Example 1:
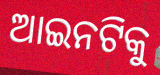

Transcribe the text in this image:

ଆଇନଟିକୁ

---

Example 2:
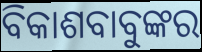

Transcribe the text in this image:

ବିକାଶବାବୁଙ୍କର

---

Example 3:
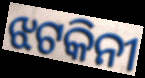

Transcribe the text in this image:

ଝଟକିନୀ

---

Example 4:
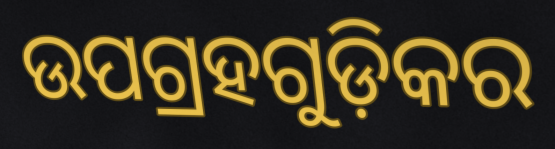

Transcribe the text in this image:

ଉପଗ୍ରହଗୁଡ଼ିକର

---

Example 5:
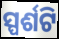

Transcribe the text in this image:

ସ୍ପର୍ଶଟି